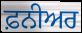
ਫ਼ਨੀਅਰ